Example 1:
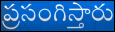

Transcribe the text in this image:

ప్రసంగిస్తారు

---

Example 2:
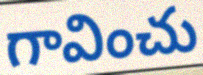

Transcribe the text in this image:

గావించు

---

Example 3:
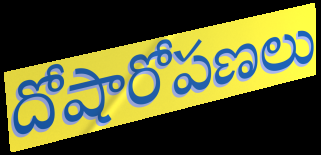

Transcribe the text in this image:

దోషారోపణలు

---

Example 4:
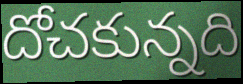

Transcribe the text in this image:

దోచకున్నది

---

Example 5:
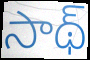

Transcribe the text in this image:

సాథ్